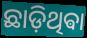
ଛାଡ଼ିଥିଵା